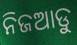
ନିଜଆଡୁ